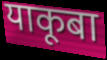
याकूबा